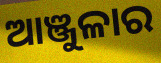
ଆଞ୍ଜୁଳାର